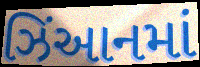
ઝિંઆનમાં